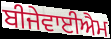
ਬੀਜੇਵਾਈਐਮ